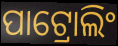
ପାଟ୍ରୋଲିଂ